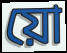
য়ো